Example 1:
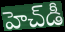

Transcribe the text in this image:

హెచ్‌డీ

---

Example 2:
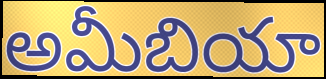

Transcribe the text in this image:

అమీబియా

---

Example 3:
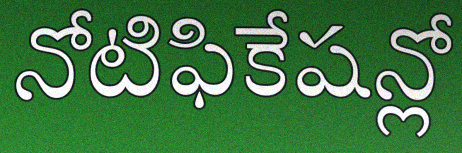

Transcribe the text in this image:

నోటిఫికేషన్లో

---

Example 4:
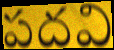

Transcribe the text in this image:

పదవి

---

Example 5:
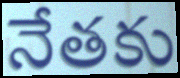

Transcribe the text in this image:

నేతకు